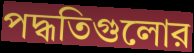
পদ্ধতিগুলোর